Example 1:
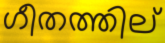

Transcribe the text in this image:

ഗീതത്തില്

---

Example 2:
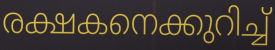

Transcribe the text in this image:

രക്ഷകനെക്കുറിച്ച്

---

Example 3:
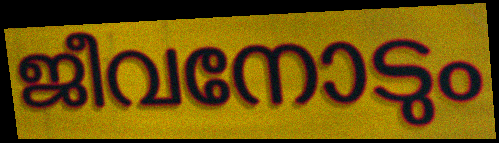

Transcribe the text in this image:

ജീവനോടും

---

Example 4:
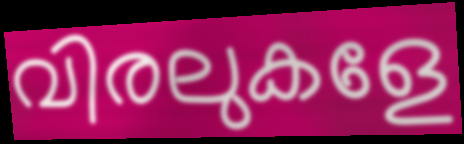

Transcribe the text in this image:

വിരലുകളേ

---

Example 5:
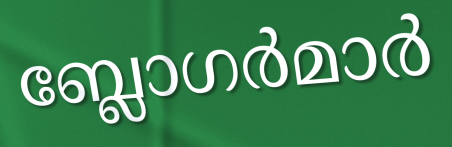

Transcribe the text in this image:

ബ്ലോഗർമാർ